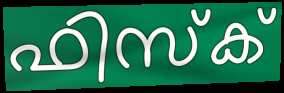
ഫിസ്ക്